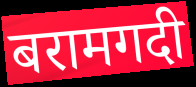
बरामगदी